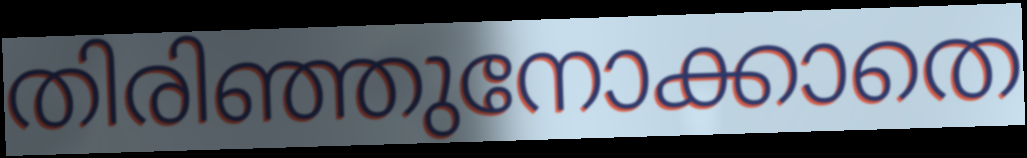
തിരിഞ്ഞുനോക്കാതെ